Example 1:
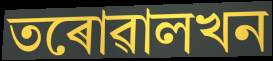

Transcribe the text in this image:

তৰোৱালখন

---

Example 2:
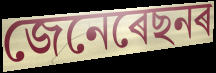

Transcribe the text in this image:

জেনেৰেছনৰ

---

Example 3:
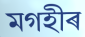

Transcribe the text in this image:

মগহীৰ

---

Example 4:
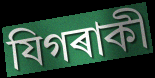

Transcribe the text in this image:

যিগৰাকী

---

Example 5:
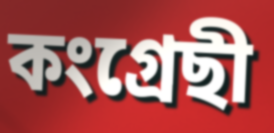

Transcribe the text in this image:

কংগ্ৰেছী